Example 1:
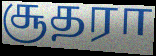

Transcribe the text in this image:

சூதரா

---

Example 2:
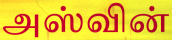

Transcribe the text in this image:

அஸ்வின்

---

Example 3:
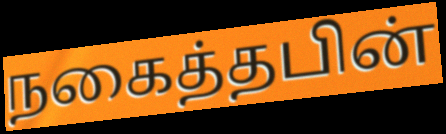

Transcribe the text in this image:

நகைத்தபின்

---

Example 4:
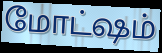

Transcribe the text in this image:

மோட்ஷம்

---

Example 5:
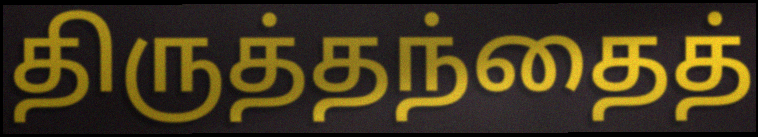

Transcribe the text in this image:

திருத்தந்தைத்